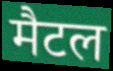
मैटल